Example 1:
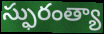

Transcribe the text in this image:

స్ఫురంత్యా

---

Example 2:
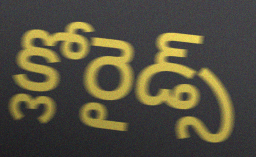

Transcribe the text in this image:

క్లోరైడ్స్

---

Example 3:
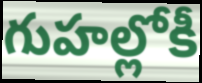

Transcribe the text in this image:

గుహల్లోకీ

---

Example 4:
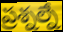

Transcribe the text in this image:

ప్రశ్నల్నే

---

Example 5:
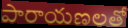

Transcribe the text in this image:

పారాయణలతో